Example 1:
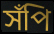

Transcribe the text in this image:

সঁপি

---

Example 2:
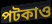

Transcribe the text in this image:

পটকাও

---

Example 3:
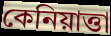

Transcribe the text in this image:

কেনিয়াত্তা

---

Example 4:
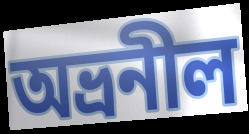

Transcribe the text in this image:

অভ্রনীল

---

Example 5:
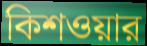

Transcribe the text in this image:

কিশওয়ার